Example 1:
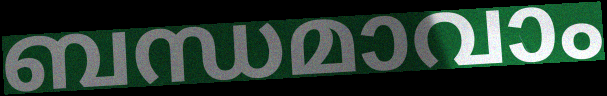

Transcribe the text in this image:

ബന്ധമാവാം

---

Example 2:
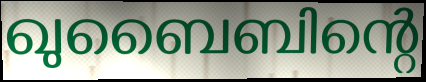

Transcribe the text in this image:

ഖുബൈബിന്റെ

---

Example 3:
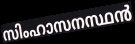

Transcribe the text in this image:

സിംഹാസനസ്ഥൻ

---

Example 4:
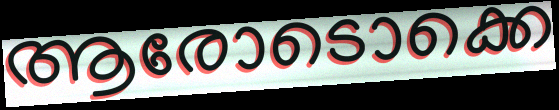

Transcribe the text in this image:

ആരോടൊക്കെ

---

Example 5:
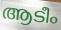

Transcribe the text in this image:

ആടീം